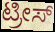
ಟ್ರೀಸ್